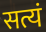
सत्यं